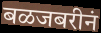
बळजबरीनं